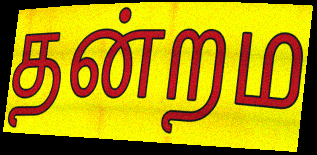
தன்றம